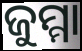
ଜୁମ୍ମା